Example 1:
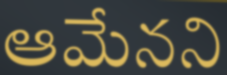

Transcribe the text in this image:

ఆమేనని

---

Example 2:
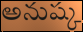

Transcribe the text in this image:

అనుష్క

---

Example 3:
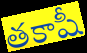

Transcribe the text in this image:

తకాషీ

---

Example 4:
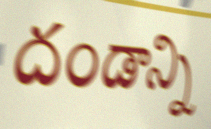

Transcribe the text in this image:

దండాన్ని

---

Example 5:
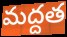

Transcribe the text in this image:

మద్దత